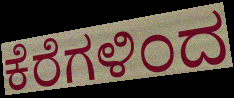
ಕೆರೆಗಳಿಂದ